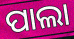
ପାଲା